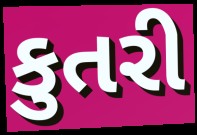
કુતરી